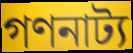
গণনাট্য